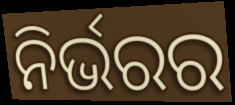
ନିର୍ଭରର